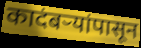
कादंबऱ्यांपासून